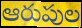
ఆరుపుల